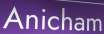
Anicham